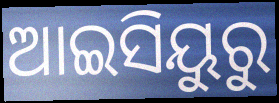
ଆଇସିୟୁରୁ